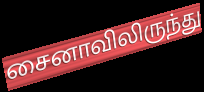
சைனாவிலிருந்து